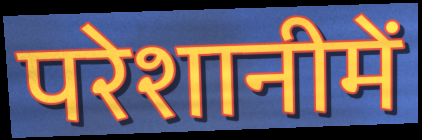
परेशानीमें